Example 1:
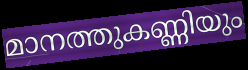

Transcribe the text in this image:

മാനത്തുകണ്ണിയും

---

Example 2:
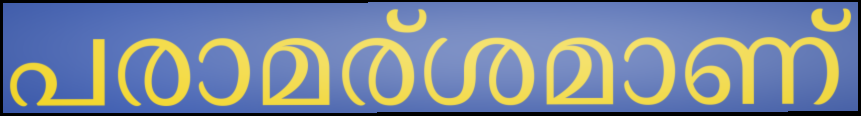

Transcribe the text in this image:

പരാമര്ശമാണ്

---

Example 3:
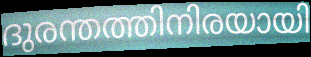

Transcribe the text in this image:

ദുരന്തത്തിനിരയായി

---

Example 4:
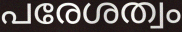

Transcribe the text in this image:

പരേശത്വം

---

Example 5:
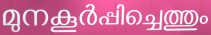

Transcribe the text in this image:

മുനകൂർപ്പിച്ചെത്തും